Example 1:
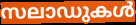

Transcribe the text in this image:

സലാഡുകൾ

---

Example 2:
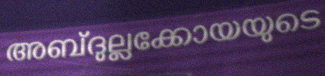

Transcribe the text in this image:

അബ്ദുല്ലക്കോയയുടെ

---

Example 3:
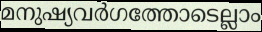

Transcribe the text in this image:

മനുഷ്യവർഗത്തോടെല്ലാം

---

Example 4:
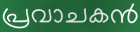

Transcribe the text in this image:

പ്രവാചകൻ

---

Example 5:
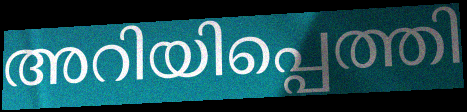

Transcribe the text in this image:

അറിയിപ്പെത്തി